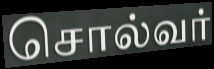
சொல்வர்